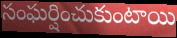
సంఘర్షించుకుంటాయి